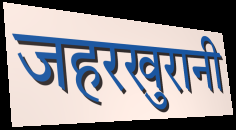
जहरखुरानी